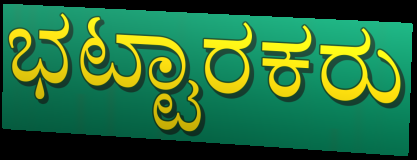
ಭಟ್ಟಾರಕರು